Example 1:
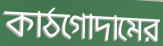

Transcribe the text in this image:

কাঠগোদামের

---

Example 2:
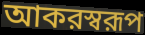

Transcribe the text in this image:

আকরস্বরূপ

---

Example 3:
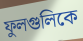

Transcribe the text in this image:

ফুলগুলিকে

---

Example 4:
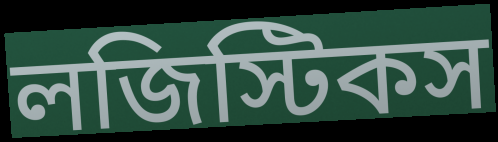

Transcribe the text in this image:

লজিস্টিকস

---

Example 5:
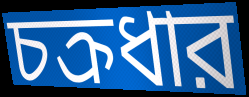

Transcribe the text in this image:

চক্রধার